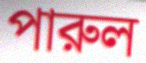
পারুল